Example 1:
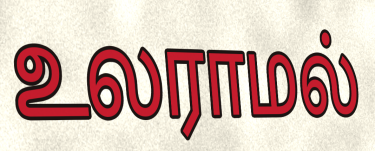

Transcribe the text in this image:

உலராமல்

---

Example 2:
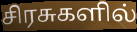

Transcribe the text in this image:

சிரசுகளில்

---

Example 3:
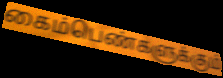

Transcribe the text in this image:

கைம்பெண்களுக்கும்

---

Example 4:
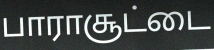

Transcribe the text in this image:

பாராசூட்டை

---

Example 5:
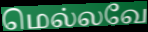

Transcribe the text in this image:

மெல்லவே